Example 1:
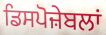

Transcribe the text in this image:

ਡਿਸਪੋਜ਼ੇਬਲਾਂ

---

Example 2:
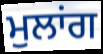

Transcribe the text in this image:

ਮੁਲਾਂਗ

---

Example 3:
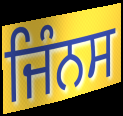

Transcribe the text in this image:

ਜਿੰਨਸ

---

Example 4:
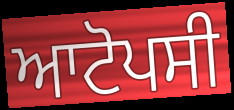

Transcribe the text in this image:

ਆਟੋਪਸੀ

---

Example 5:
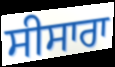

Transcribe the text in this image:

ਸੀਸਾਰਾ